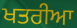
ਖਤਰੀਆ